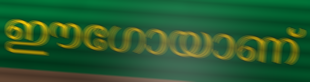
ഈഗോയാണ്